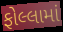
ફોલ્લામાં